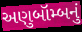
અણુબૉમ્બનું